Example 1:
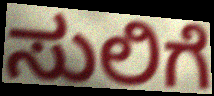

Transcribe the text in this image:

ಸುಲಿಗೆ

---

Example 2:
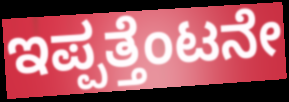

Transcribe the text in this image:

ಇಪ್ಪತ್ತೆಂಟನೇ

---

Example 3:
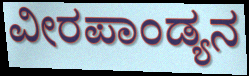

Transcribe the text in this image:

ವೀರಪಾಂಡ್ಯನ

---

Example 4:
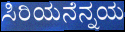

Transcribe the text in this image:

ಸಿರಿಯನೆನ್ನಯ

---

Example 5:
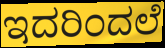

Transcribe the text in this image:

ಇದರಿಂದಲೆ